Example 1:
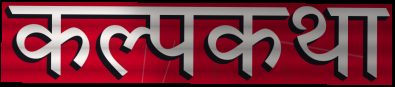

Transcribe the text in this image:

कल्पकथा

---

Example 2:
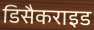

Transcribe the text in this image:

डिसैकराइड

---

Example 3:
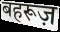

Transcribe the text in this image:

बहरूज़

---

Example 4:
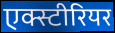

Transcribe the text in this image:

एक्स्टीरियर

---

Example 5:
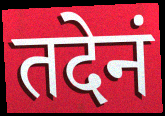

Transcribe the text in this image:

तदेनं